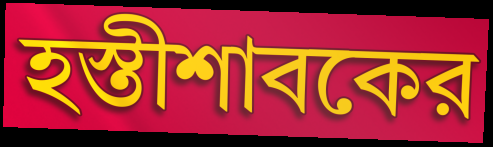
হস্তীশাবকের